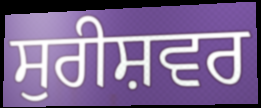
ਸੁਰੀਸ਼ਵਰ